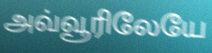
அவ்வூரிலேயே